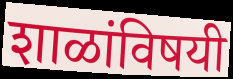
शाळांविषयी